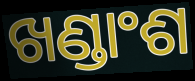
ଖଣ୍ଡାଂଶ